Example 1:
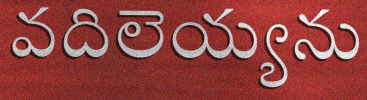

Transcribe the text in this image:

వదిలెయ్యను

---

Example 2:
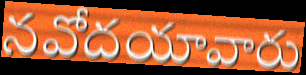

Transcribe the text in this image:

నవోదయావారు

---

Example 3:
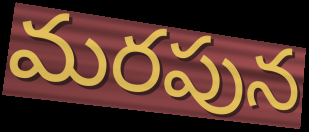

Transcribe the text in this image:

మరపున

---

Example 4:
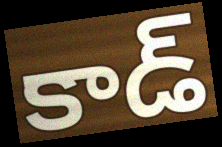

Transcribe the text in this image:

కాడ్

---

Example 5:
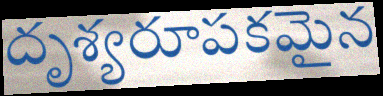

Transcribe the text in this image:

దృశ్యరూపకమైన